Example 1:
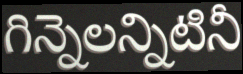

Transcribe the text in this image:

గిన్నెలన్నిటినీ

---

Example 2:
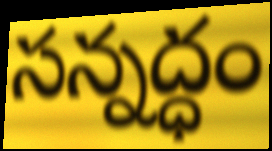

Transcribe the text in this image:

సన్నద్ధం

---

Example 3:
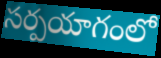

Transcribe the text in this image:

సర్పయాగంలో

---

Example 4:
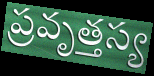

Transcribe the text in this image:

ప్రవృత్తస్య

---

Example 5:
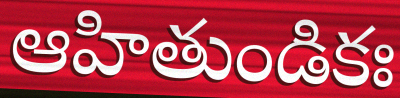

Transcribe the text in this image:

ఆహితుండికః